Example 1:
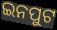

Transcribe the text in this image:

ଇନପୁଟ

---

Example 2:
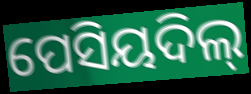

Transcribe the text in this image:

ପେସିୟଦିଲ୍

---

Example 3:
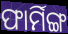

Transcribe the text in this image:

ଫାର୍ମିଙ୍ଗ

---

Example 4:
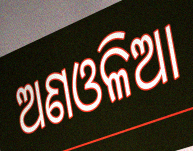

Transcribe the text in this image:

ଅଣଓଳିଆ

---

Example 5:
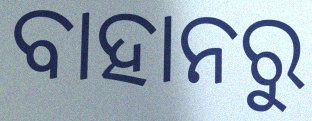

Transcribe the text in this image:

ବାହାନରୁ